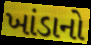
ખાંડાનો